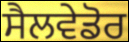
ਸੈਲਵੇਡੋਰ